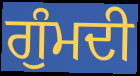
ਗੁੰਮਦੀ